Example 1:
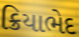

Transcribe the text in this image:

ક્રિયાભેદ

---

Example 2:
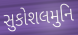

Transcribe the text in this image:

સુકોશલમુનિ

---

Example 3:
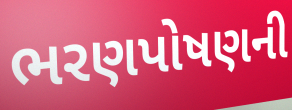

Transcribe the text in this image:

ભરણપોષણની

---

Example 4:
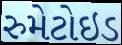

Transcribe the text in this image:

રુમેટોઇડ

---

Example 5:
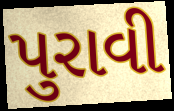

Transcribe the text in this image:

પુરાવી